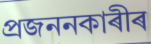
প্ৰজননকাৰীৰ